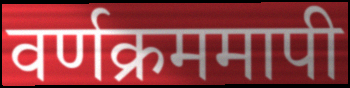
वर्णक्रममापी